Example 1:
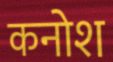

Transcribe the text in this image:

कनोश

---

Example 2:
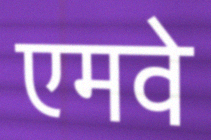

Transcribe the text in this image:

एमवे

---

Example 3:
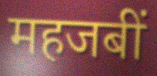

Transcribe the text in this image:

महजबीं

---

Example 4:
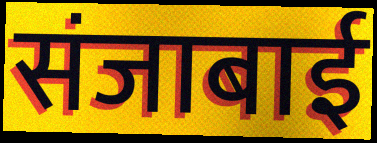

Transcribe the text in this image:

संजाबाई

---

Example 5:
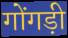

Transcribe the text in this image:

गोंगड़ी